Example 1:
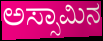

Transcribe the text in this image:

ಅಸ್ಸಾಮಿನ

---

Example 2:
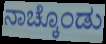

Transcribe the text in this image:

ನಾಚ್ಕೊಂಡು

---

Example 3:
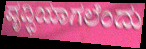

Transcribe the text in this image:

ವೃದ್ಧಿಯಾಗಲೆಂದು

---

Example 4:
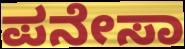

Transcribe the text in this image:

ಪನೇಸಾ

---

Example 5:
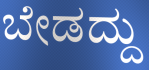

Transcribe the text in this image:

ಬೇಡದ್ದು